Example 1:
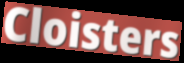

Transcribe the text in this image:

Cloisters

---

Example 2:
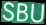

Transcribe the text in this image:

SBU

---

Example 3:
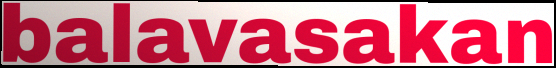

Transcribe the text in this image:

balavasakan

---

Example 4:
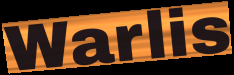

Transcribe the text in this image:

Warlis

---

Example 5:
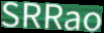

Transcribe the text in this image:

SRRao